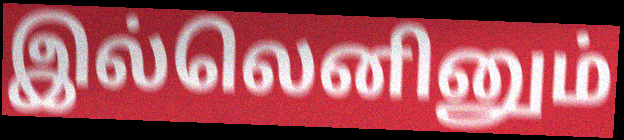
இல்லெனினும்